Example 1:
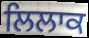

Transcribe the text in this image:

ਲਿਲਾਕ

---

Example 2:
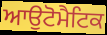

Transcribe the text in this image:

ਆਉਟੋਮੈਟਿਕ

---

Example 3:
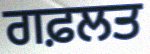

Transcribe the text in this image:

ਗਫ਼ਲਤ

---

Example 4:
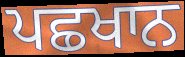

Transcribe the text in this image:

ਪਛਖਾਨ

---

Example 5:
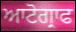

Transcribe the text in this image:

ਆਟੋਗ੍ਰਾਫ